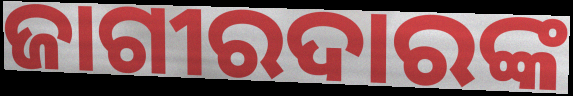
ଜାଗୀରଦାରଙ୍କ